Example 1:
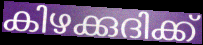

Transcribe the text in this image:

കിഴക്കുദിക്ക്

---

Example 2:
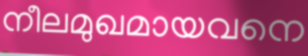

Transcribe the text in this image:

നീലമുഖമായവനെ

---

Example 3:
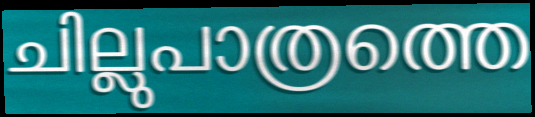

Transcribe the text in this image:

ചില്ലുപാത്രത്തെ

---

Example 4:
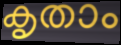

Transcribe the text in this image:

കൃതാം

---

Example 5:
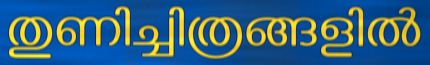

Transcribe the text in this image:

തുണിച്ചിത്രങ്ങളിൽ